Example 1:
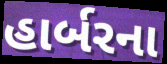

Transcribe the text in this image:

હાર્બરના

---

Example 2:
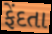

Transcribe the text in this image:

ફેંદતા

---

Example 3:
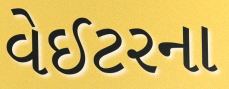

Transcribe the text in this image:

વેઈટરના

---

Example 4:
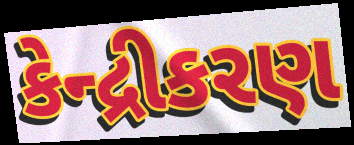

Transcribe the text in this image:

કેન્દ્રીકરણ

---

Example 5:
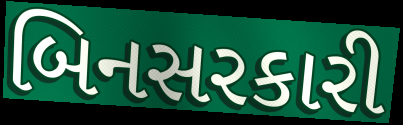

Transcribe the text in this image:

બિનસરકારી